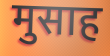
मुसाह